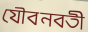
যৌবনবতী